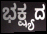
ಭಕ್ಷ್ಯದ